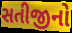
સતીજીનો